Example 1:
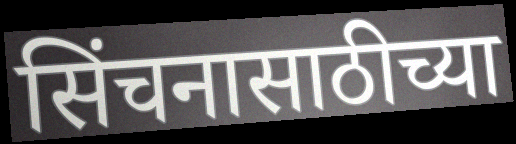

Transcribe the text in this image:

सिंचनासाठीच्या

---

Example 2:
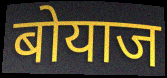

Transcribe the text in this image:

बोयाज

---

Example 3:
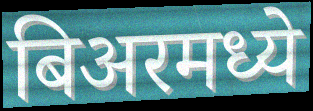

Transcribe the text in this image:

बिअरमध्ये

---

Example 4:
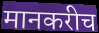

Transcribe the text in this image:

मानकरीच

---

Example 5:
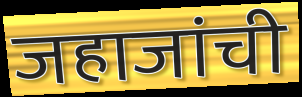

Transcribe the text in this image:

जहाजांची